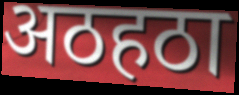
अठहठा